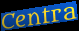
Centra